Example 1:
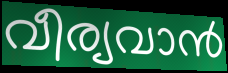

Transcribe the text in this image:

വീര്യവാൻ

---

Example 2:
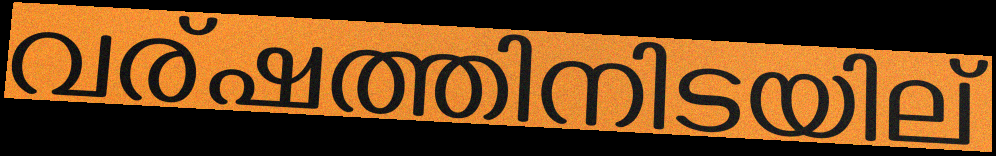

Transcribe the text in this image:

വര്ഷത്തിനിടയില്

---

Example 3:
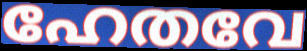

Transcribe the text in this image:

ഹേതവേ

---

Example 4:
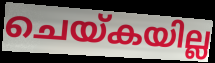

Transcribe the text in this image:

ചെയ്കയില്ല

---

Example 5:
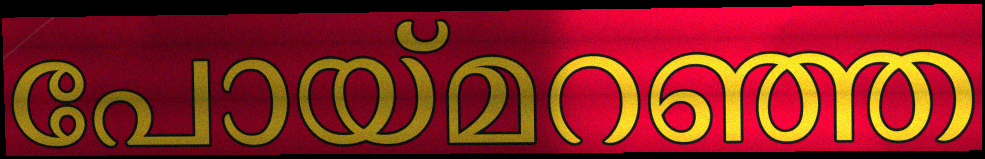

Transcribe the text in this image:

പോയ്മറഞ്ഞ